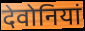
देवोनियां